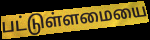
பட்டுள்ளமையை